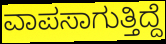
ವಾಪಸಾಗುತ್ತಿದ್ದೆ